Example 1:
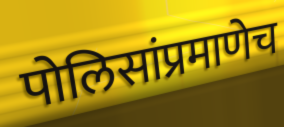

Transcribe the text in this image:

पोलिसांप्रमाणेच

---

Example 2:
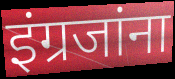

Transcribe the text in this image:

इंग्रजांना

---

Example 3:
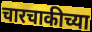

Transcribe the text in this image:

चारचाकीच्या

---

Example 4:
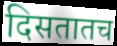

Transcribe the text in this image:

दिसतातच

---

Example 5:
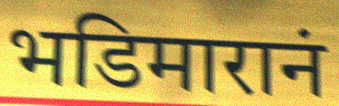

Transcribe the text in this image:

भडिमारानं